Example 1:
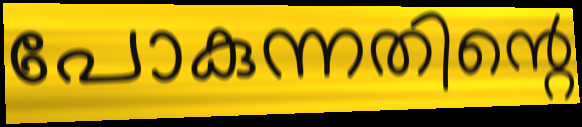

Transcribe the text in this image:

പോകുന്നതിന്റെ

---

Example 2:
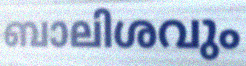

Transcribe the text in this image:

ബാലിശവും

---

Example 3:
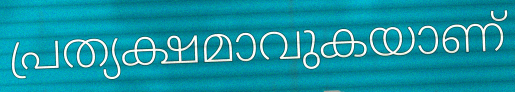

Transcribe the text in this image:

പ്രത്യക്ഷമാവുകയാണ്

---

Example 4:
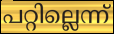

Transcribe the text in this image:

പറ്റില്ലെന്ന്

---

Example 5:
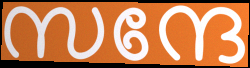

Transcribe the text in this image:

സന്ദേ